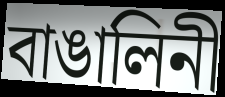
বাঙালিনী